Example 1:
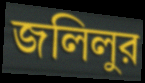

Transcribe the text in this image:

জলিলুর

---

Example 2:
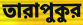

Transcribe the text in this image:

তারাপুকুর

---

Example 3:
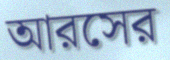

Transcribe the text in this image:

আরসের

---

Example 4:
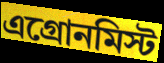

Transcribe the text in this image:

এগ্রোনমিস্ট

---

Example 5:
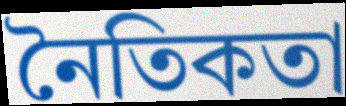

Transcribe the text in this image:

নৈতিকতা